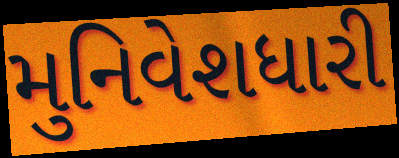
મુનિવેશધારી